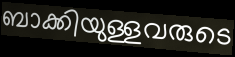
ബാക്കിയുള്ളവരുടെ